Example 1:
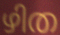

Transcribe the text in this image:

ഴിത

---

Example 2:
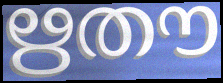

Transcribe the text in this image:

ഋതൗ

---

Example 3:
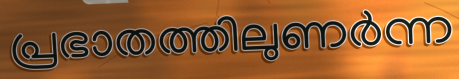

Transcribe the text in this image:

പ്രഭാതത്തിലുണർന്ന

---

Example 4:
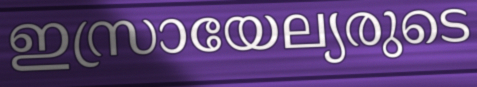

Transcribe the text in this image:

ഇസ്രായേല്യരുടെ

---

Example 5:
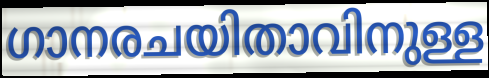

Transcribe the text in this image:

ഗാനരചയിതാവിനുള്ള